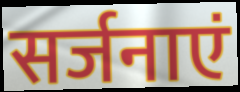
सर्जनाएं